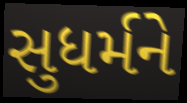
સુધર્મને